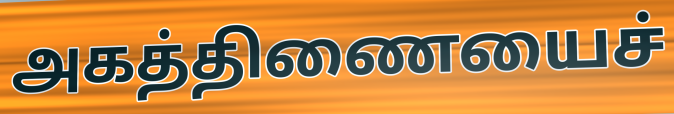
அகத்திணையைச்